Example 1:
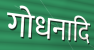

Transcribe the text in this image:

गोधनादि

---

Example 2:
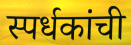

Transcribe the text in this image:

स्पर्धकांची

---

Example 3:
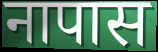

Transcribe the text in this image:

नापास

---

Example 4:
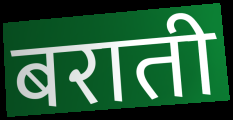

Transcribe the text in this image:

बराती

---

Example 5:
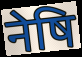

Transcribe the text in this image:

नेषि